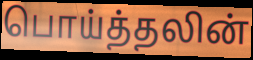
பொய்த்தலின்